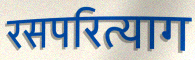
रसपरित्याग